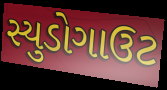
સ્યુડોગાઉટ